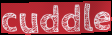
cuddle